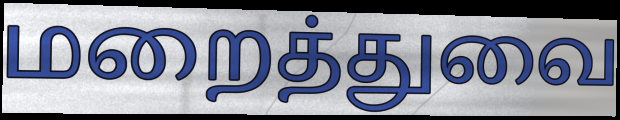
மறைத்துவை